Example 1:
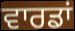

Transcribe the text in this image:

ਵਾਰਡਾਂ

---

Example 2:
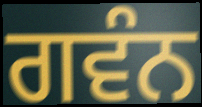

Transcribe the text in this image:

ਗਵੰਨ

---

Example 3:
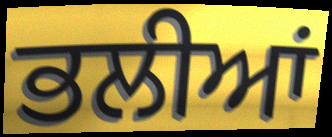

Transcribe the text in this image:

ਭਲੀਆਂ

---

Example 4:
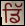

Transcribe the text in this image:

ਡਿੱ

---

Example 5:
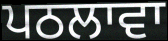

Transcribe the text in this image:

ਪਠਲਾਵਾ